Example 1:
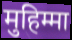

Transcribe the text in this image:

मुहिम्मा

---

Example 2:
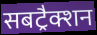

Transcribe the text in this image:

सबट्रैक्शन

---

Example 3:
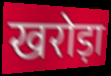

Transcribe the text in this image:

खरोड़ा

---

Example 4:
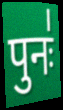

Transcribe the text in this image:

पुनः॑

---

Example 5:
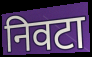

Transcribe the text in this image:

निवटा